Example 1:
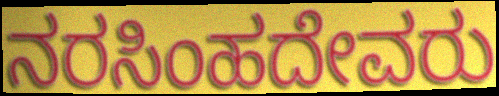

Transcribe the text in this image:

ನರಸಿಂಹದೇವರು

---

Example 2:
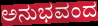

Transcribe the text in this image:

ಅನುಭವಂದ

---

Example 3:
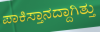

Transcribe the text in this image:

ಪಾಕಿಸ್ತಾನದ್ದಾಗಿತ್ತು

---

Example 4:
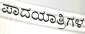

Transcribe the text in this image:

ಪಾದಯಾತ್ರಿಗಳ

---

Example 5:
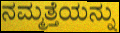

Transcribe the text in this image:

ನಮ್ಮತ್ತೆಯನ್ನು